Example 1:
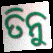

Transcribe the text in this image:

ତିନୁ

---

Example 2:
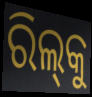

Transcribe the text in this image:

ରିଲ୍‌କୁ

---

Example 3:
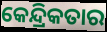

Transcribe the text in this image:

କେନ୍ଦ୍ରିକତାର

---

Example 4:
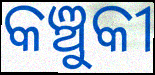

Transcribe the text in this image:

କଞ୍ଚୁକୀ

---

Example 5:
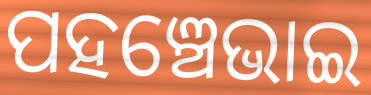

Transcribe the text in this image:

ପହଞ୍ଚେଭାଇ